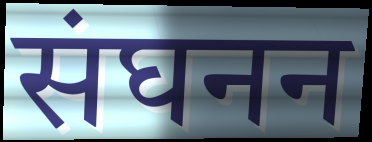
संघनन